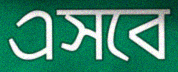
এসবে